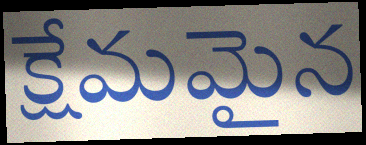
క్షేమమైన